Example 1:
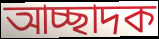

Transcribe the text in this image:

আচ্ছাদক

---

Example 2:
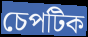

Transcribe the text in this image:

চেপটিক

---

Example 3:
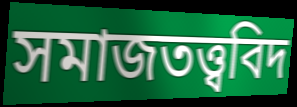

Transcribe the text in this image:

সমাজতত্ত্ববিদ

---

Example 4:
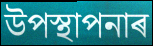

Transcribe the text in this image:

উপস্থাপনাৰ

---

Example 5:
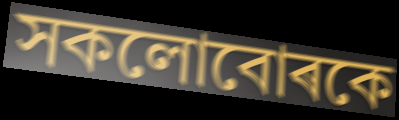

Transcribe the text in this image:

সকলোবোৰকে